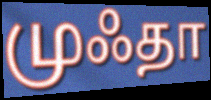
முஃதா